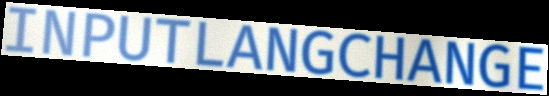
INPUTLANGCHANGE